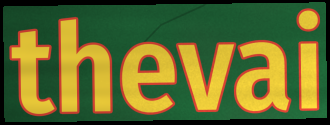
thevai